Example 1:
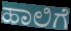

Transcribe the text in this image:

ಹಾಲಿಗೆ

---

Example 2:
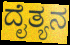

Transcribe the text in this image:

ದೈತ್ಯನ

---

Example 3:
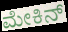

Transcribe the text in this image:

ಮೇಕಿನ್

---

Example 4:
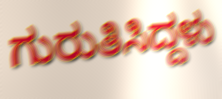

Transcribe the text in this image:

ಗುರುತಿಸಿದ್ದಳು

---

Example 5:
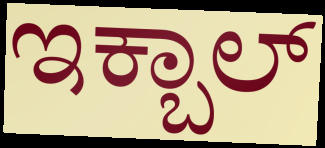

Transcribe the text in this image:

ಇಕ್ಬಾಲ್